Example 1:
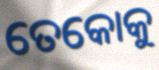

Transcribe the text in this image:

ତେକୋକୁ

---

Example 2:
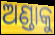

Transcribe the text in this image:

ଅଣ୍ଡାକୁ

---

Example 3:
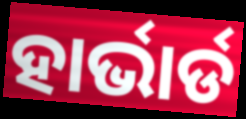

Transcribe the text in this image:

ହାର୍ଭାର୍ଡ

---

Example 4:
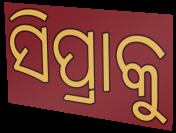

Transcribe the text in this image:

ସିପ୍ରାକୁ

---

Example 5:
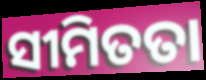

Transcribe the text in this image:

ସୀମିତତା